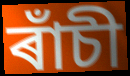
ৰাঁচী